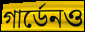
গার্ডেনও